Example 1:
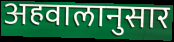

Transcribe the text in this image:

अहवालानुसार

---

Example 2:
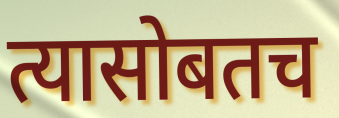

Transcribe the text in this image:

त्यासोबतच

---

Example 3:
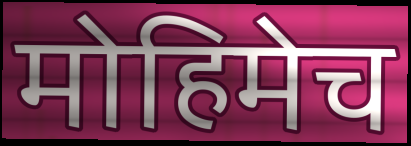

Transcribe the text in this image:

मोहिमेच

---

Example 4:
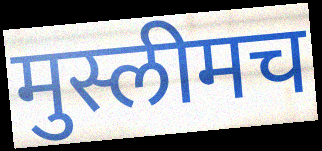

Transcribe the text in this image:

मुस्लीमच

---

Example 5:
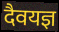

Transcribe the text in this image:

दैवयज्ञ